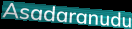
Asadaranudu